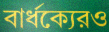
বার্ধক্যেরও